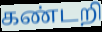
கண்டறி